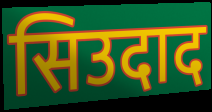
सिउदाद